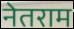
नेतराम